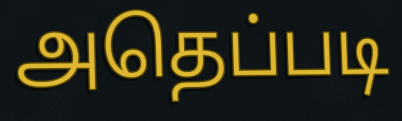
அதெப்படி